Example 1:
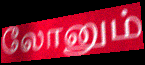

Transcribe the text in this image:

லோனும்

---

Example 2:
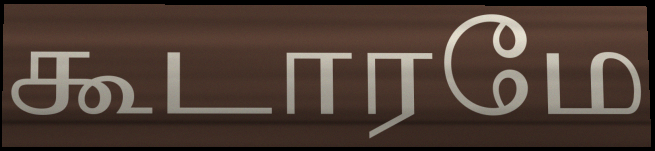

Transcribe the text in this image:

கூடாரமே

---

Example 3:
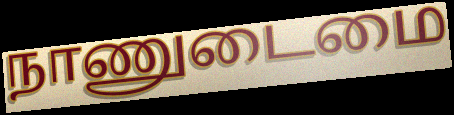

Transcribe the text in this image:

நாணுடைமை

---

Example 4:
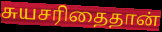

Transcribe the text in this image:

சுயசரிதைதான்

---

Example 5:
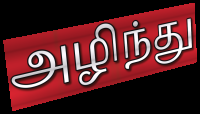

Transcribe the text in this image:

அழிந்து